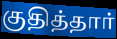
குதித்தார்